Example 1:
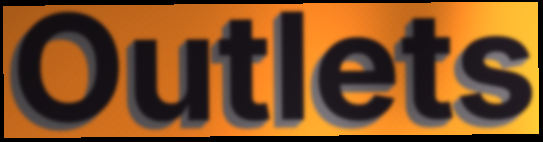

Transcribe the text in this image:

Outlets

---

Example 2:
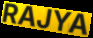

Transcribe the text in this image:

RAJYA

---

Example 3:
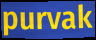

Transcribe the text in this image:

purvak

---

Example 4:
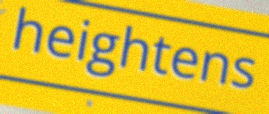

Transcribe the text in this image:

heightens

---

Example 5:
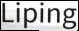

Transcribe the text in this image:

Liping